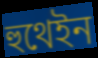
হুথেইন